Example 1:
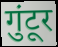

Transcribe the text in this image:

गुंटूर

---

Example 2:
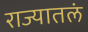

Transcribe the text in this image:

राज्यातलं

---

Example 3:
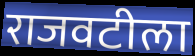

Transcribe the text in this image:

राजवटीला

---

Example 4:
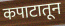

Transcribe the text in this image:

कपाटातून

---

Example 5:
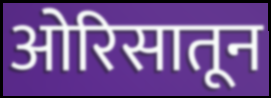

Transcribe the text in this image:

ओरिसातून